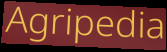
Agripedia